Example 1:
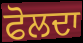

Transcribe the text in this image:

ਫੋਲਦਾ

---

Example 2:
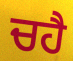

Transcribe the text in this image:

ਚਹੈ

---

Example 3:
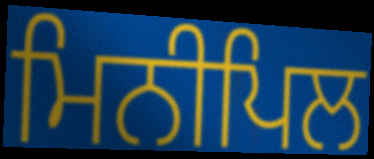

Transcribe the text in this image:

ਮਿਨੀਪਿਲ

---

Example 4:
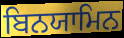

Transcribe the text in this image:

ਬਿਨਯਾਮਿਨ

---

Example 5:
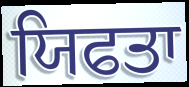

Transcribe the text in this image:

ਯਿਫਤਾ